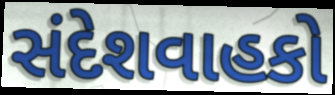
સંદેશવાહકો